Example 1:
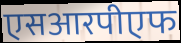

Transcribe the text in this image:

एसआरपीएफ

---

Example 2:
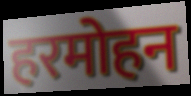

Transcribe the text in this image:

हरमोहन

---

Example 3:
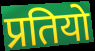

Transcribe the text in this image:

प्रतियो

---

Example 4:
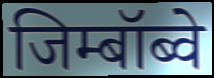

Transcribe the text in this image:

जिम्बॉब्वे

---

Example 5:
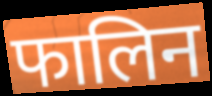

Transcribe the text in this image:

फालिन